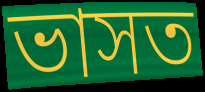
ভাসত